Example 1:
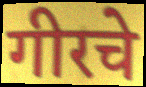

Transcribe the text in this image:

गीरचे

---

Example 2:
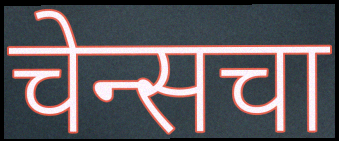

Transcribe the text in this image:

चेन्सचा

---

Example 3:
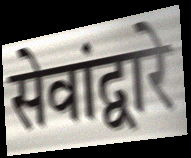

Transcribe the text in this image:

सेवांद्वारे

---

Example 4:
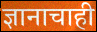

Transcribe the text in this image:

ज्ञानाचाही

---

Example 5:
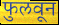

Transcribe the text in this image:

फुलवून